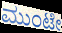
ಮುಂಟೇ